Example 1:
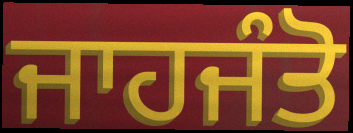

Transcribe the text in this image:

ਜਾਹਜੰਤੋ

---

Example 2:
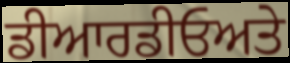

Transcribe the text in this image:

ਡੀਆਰਡੀਓਅਤੇ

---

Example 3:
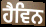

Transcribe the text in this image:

ਹੈਵਿਨ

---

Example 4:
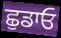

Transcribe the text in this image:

ਛੁਡਾਓ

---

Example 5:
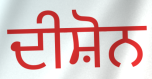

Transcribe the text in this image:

ਦੀਸ਼ੋਨ